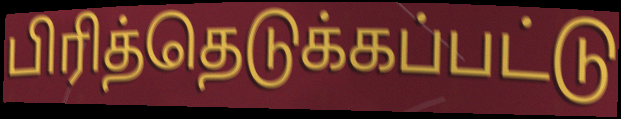
பிரித்தெடுக்கப்பட்டு